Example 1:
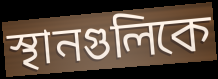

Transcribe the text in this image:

স্থানগুলিকে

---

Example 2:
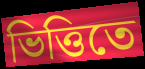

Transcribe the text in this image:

ভিত্তিতে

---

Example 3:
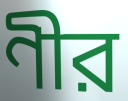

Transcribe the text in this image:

ণীর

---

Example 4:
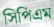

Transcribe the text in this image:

সিপিএম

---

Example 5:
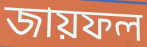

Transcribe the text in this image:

জায়ফল